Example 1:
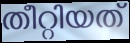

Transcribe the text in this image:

തീറ്റിയത്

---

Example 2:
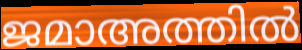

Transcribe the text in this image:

ജമാഅത്തിൽ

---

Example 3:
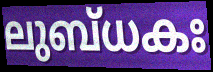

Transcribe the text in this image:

ലുബ്ധകഃ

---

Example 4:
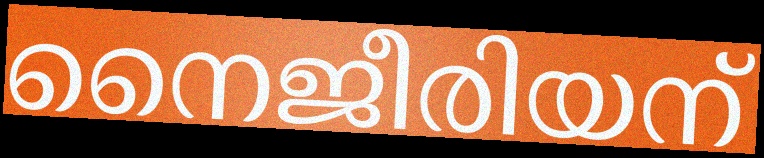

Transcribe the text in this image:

നൈജീരിയന്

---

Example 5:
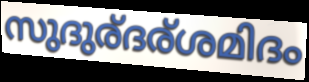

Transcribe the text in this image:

സുദുര്ദര്ശമിദം